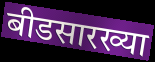
बीडसारख्या